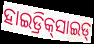
ହାଇଡ୍ରିକ୍‌ସାଇଡ୍